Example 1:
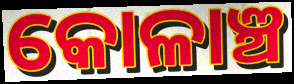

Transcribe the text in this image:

କୋଳାଞ୍ଚ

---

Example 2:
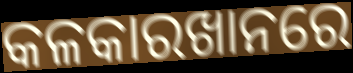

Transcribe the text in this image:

କଳକାରଖାନରେ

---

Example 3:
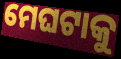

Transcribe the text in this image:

ମେଘଟାକୁ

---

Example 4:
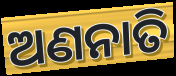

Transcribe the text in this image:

ଅଣନାତି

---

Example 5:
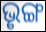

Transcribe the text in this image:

ଭୃଙ୍ଗ